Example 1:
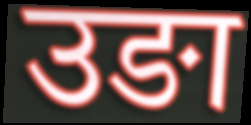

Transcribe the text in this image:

उङा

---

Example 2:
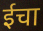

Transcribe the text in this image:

ईचा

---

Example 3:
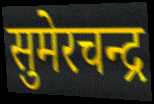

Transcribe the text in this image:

सुमेरचन्द्र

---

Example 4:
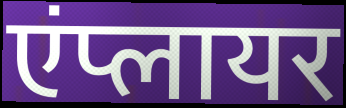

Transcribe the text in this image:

एंप्लायर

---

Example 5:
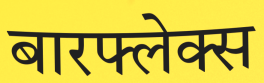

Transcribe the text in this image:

बारफ्लेक्स